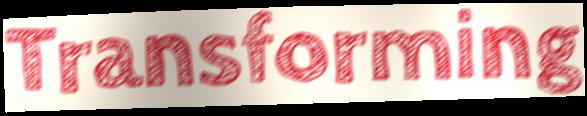
Transforming